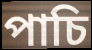
পাচি